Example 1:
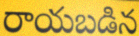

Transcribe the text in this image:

రాయబడిన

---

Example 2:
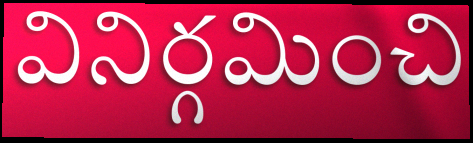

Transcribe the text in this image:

వినిర్గమించి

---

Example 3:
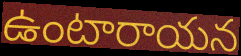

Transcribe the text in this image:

ఉంటారాయన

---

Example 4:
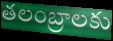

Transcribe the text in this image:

తలంబ్రాలకు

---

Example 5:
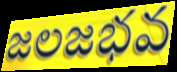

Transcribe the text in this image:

జలజభవ